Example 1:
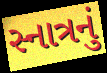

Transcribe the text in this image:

સ્નાત્રનું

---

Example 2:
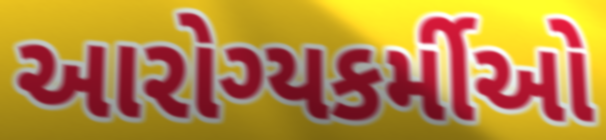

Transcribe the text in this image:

આરોગ્યકર્મીઓ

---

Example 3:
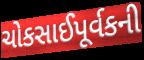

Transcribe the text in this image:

ચોકસાઈપૂર્વકની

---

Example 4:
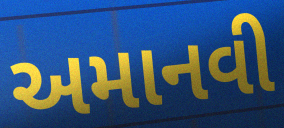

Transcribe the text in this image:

અમાનવી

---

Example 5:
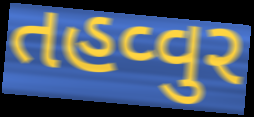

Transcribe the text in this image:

તહવ્વુર